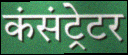
कंसंट्रेटर